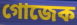
গোজেক